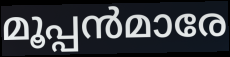
മൂപ്പൻമാരേ